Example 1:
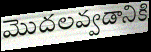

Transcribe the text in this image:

మొదలవ్వడానికి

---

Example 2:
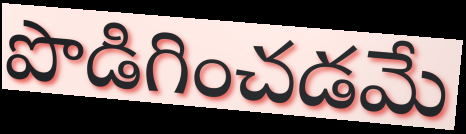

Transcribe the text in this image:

పొడిగించడమే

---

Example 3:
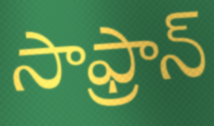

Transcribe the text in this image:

సాఫ్రాన్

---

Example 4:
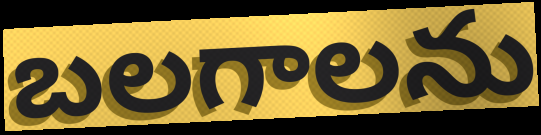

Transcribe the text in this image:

బలగాలను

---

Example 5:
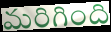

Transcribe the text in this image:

మరిగింది